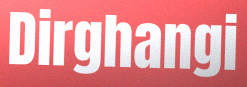
Dirghangi